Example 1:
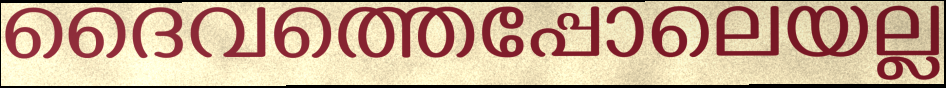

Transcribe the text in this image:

ദൈവത്തെപ്പോലെയല്ല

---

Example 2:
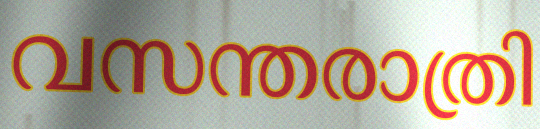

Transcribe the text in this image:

വസന്തരാത്രി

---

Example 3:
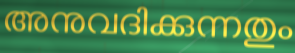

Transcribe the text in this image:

അനുവദിക്കുന്നതും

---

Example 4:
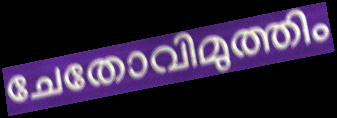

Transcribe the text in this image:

ചേതോവിമുത്തിം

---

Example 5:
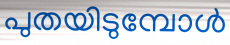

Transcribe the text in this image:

പുതയിടുമ്പോൾ